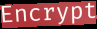
Encrypt